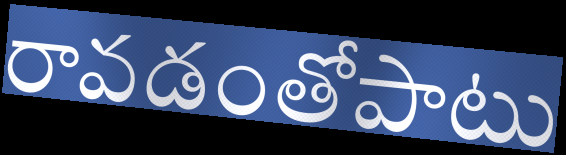
రావడంతోపాటు